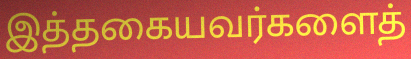
இத்தகையவர்களைத்